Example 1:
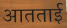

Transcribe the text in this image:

आतताई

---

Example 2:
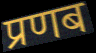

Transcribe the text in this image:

प्रणब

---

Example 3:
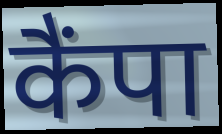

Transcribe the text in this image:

कैंपा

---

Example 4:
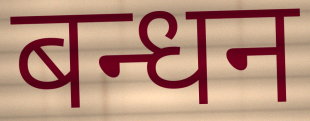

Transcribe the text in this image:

बन्धन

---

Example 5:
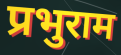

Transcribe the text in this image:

प्रभुराम